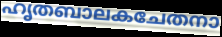
ഹൃതബാലകചേതനാ